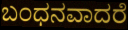
ಬಂಧನವಾದರೆ